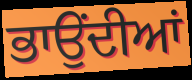
ਭਾਉਂਦੀਆਂ